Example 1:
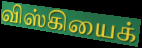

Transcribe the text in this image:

விஸ்கியைக்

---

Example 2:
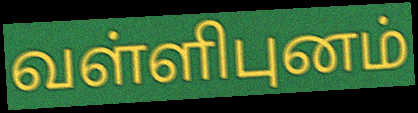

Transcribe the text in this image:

வள்ளிபுனம்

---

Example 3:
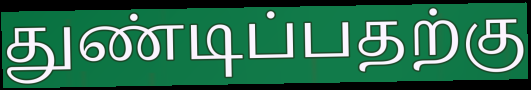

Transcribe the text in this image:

துண்டிப்பதற்கு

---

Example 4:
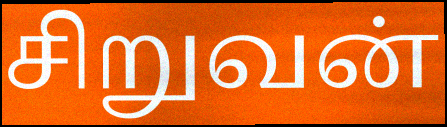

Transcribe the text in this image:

சிறுவன்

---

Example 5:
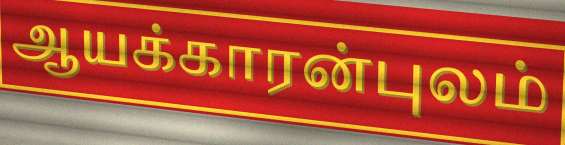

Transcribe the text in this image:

ஆயக்காரன்புலம்